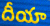
దీయా